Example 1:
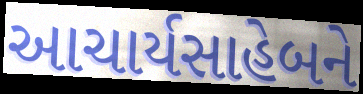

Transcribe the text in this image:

આચાર્યસાહેબને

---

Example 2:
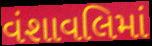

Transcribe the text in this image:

વંશાવલિમાં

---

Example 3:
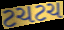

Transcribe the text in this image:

ટચટચ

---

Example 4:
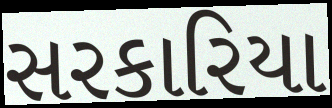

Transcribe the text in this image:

સરકારિયા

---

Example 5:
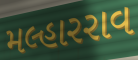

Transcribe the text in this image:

મલ્હારરાવ